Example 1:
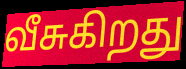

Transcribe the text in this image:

வீசுகிறது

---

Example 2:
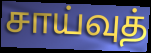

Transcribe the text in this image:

சாய்வுத்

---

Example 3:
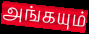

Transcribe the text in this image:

அங்கயும்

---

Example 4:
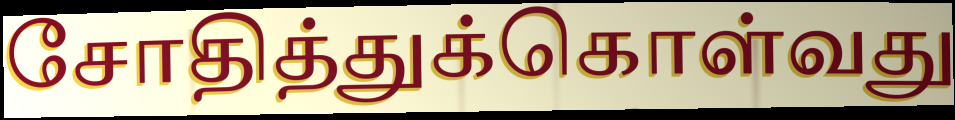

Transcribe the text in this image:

சோதித்துக்கொள்வது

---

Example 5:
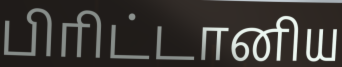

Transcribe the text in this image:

பிரிட்டானிய